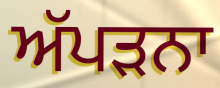
ਅੱਪੜਨਾ